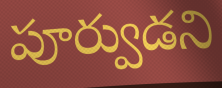
పూర్వుడని